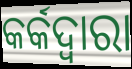
କର୍କଦ୍ଵାରା